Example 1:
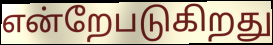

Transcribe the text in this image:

என்றேபடுகிறது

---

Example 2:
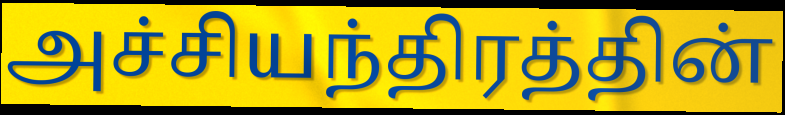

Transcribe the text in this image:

அச்சியந்திரத்தின்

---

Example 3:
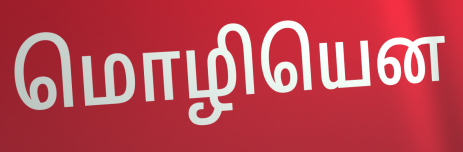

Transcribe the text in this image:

மொழியென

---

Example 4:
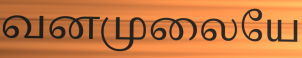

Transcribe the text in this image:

வனமுலையே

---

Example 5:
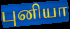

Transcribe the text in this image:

புனியா